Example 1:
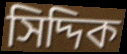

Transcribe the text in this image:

সিদ্দিক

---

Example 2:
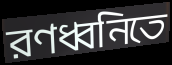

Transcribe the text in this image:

রণধ্বনিতে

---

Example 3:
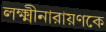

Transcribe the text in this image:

লক্ষ্মীনারায়ণকে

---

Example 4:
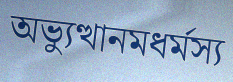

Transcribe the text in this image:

অভ্যুত্থানমধর্মস্য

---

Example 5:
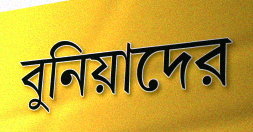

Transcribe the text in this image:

বুনিয়াদের